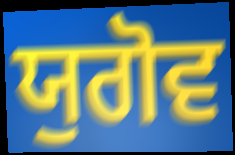
ਯੁਗੋਵ